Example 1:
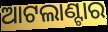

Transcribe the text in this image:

ଆଟଲାଣ୍ଟାର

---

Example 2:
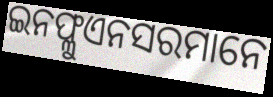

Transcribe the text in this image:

ଇନଫ୍ଳୁଏନସରମାନେ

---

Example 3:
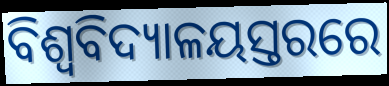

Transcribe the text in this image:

ବିଶ୍ୱବିଦ୍ୟାଳୟସ୍ତରରେ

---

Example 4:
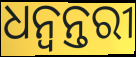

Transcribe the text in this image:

ଧନ୍ବନ୍ତରୀ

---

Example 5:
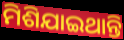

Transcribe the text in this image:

ମିଶିଯାଇଥାନ୍ତି